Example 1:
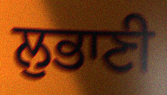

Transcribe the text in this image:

ਲੁਭਾਣੀ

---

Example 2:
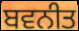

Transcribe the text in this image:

ਬਵਨੀਤ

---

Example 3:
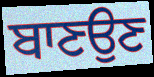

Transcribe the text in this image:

ਬਾਣਉਣ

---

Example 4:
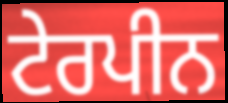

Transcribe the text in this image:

ਟੇਰਪੀਨ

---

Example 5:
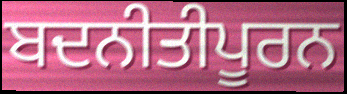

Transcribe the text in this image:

ਬਦਨੀਤੀਪੂਰਨ